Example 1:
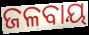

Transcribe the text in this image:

ଜଳବାୟ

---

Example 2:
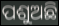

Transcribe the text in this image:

ପଶୁଅଛି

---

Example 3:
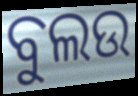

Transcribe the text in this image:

ବୁଲଉ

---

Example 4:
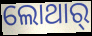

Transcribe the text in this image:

ଲୋଥାର୍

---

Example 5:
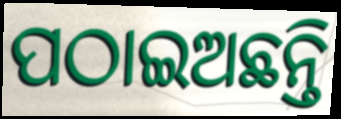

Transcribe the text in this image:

ପଠାଇଅଛନ୍ତି